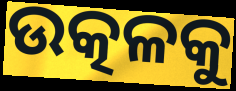
ଉତ୍କଳକୁ